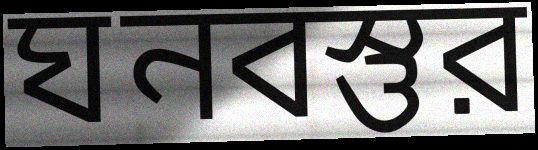
ঘনবস্তুর